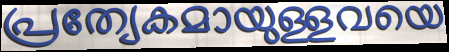
പ്രത്യേകമായുള്ളവയെ